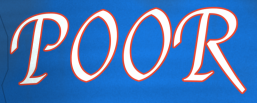
POOR